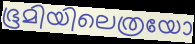
ഭൂമിയിലെത്രയോ